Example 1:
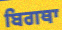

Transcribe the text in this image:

ਬਿਗਥਾ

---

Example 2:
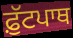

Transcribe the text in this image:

ਫ਼ੁੱਟਪਾਥ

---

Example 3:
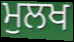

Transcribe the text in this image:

ਮੁਲਖ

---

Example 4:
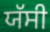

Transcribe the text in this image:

ਯੱਸੀ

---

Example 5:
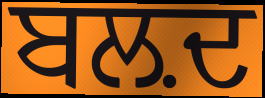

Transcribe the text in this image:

ਬਲ਼ਦ